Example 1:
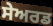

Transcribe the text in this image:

ਸੇਅਰਡ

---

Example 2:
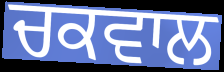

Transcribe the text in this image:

ਚਕਵਾਲ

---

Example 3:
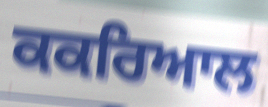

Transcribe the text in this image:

ਕਕਰਿਆਲ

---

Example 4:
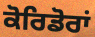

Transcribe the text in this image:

ਕੋਰਿਡੋਰਾਂ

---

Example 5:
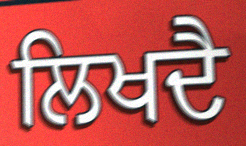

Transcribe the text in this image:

ਲਿਖਦੈ